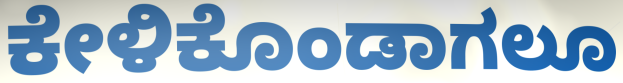
ಕೇಳಿಕೊಂಡಾಗಲೂ